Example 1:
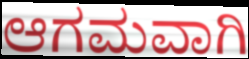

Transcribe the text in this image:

ಆಗಮವಾಗಿ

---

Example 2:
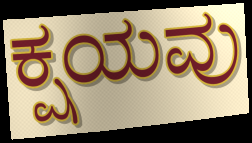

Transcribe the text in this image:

ಕ್ಷಯವು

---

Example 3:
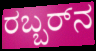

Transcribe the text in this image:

ರಬ್ಬರ್‌ನ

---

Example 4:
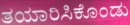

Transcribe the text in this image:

ತಯಾರಿಸಿಕೊಂಡು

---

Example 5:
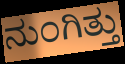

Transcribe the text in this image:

ನುಂಗಿತ್ತು